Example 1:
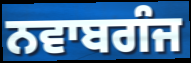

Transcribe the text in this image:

ਨਵਾਬਗੰਜ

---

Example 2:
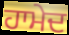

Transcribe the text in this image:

ਹਾਮੇਦ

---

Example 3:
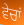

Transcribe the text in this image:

ਵੇਚਾਂ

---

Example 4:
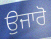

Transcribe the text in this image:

ਉਜਾਰੋ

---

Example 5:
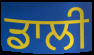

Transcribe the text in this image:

ਡਾਲੀ